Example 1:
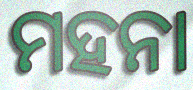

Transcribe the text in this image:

ମହନା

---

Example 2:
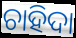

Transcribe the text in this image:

ଚାହିଦା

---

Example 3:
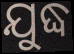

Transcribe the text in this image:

ଯୁଦ୍ଧ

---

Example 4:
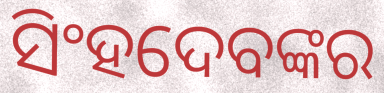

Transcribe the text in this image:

ସିଂହଦେବଙ୍କର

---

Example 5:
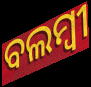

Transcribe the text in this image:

ବଲମ୍ୱୀ